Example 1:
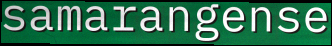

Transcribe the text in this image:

samarangense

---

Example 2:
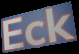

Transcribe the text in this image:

Eck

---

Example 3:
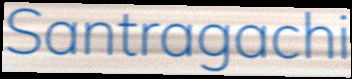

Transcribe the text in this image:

Santragachi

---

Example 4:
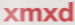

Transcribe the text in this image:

xmxd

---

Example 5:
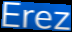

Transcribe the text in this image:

Erez